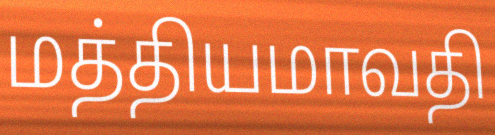
மத்தியமாவதி